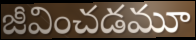
జీవించడమూ